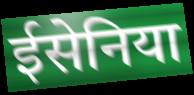
ईसेनिया